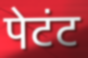
पेटंट